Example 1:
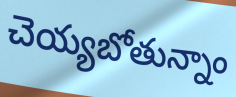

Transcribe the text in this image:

చెయ్యబోతున్నాం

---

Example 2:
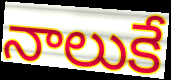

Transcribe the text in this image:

నాలుకే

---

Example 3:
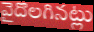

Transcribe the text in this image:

వైదొలగినట్లు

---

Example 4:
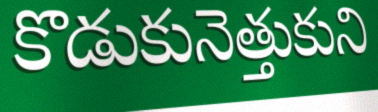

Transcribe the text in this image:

కొడుకునెత్తుకుని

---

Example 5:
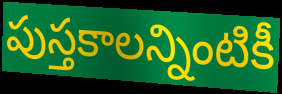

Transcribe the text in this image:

పుస్తకాలన్నింటికీ